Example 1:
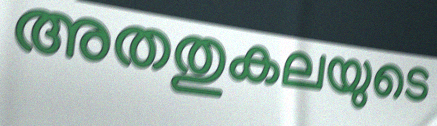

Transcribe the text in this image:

അതതുകലയുടെ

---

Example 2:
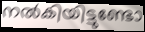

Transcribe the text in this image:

നൽകിയിട്ടുണ്ടോ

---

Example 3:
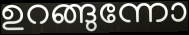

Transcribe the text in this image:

ഉറങ്ങുന്നോ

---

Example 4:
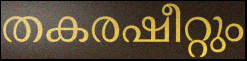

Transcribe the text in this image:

തകരഷീറ്റും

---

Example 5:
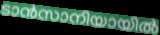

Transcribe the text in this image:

ടാൻസാനിയായിൽ